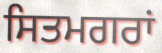
ਸਿਤਮਗਰਾਂ